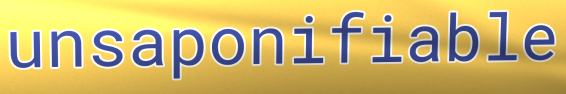
unsaponifiable